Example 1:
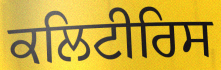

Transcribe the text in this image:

ਕਲਿਟੀਰਿਸ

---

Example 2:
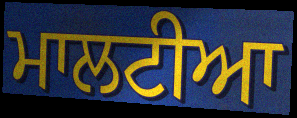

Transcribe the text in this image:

ਮਾਲਟੀਆ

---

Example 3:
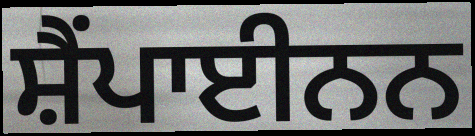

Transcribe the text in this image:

ਸ਼ੈਂਪਾਈਨਨ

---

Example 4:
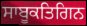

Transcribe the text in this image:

ਸਾਬੂਕਤਿਗਿਨ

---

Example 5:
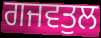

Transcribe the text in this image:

ਗਜਵਤੁਲ